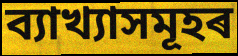
ব্যাখ্যাসমূহৰ